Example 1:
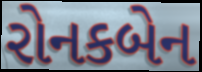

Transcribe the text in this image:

રોનકબેન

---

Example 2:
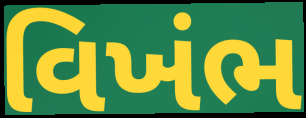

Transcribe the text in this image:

વિખંભ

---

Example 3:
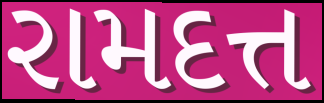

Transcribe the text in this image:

રામદત્ત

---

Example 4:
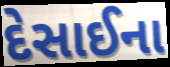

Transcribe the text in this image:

દેસાઈના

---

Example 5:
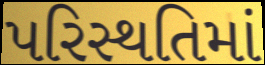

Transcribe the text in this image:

પરિસ્થતિમાં